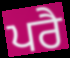
ਪਰੈ